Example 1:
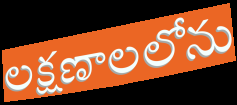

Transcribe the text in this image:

లక్షణాలలోను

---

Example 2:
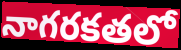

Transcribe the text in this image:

నాగరకతలో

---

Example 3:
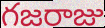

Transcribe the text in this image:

గజరాజు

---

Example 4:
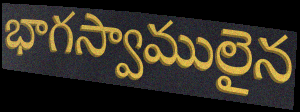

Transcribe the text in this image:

భాగస్వాములైన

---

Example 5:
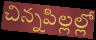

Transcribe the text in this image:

చిన్నపిల్లల్లో